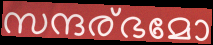
സന്ദര്ഭമോ